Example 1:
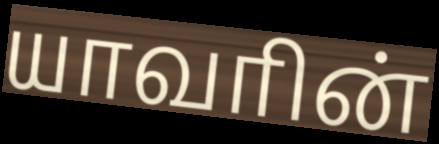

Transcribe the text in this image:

யாவரின்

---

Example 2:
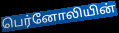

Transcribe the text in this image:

பெர்னோலியின்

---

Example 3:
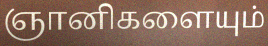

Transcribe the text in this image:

ஞானிகளையும்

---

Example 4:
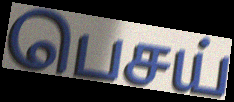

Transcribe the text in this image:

பெசய்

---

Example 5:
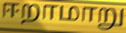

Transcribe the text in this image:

ஈறாமாறு